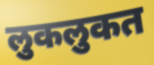
लुकलुकत